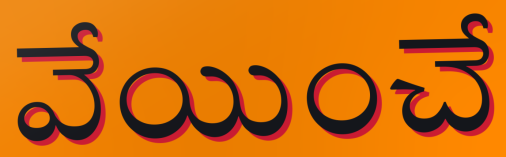
వేయించే